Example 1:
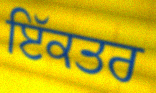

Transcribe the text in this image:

ਇੱਕਤਰ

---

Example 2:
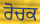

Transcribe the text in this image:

ਰੋਚਕ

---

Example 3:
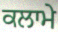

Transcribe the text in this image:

ਕਲਾਮੇ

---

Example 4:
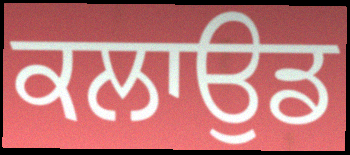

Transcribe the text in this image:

ਕਲਾਉਡ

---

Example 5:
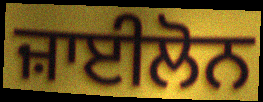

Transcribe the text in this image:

ਜ਼ਾਈਲੋਨ